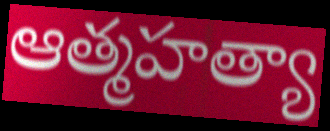
ఆత్మహత్యా